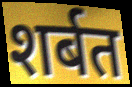
शर्बत